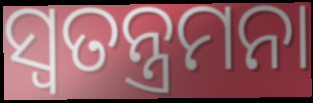
ସ୍ୱତନ୍ତ୍ରମନା